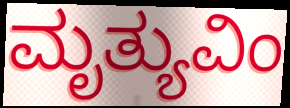
ಮೃತ್ಯುವಿಂ